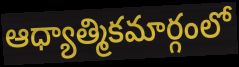
ఆధ్యాత్మికమార్గంలో